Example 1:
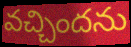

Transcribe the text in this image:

వచ్చిందను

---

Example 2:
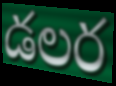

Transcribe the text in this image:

డలర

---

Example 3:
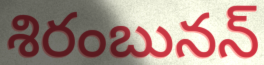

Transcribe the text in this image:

శిరంబునన్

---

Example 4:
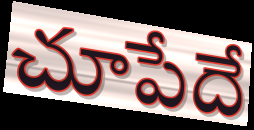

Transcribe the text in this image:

చూపేదే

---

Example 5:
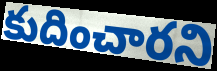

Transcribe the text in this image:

కుదించారని